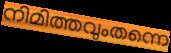
നിമിത്തവുംതന്നെ